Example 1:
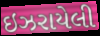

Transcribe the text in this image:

ઇઝરાયેલી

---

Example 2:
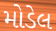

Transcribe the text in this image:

મોડેલ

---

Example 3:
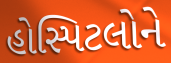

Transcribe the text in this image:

હોસ્પિટલોને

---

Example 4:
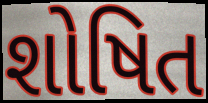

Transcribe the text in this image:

શોષિત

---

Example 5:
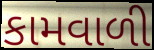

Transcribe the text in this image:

કામવાળી